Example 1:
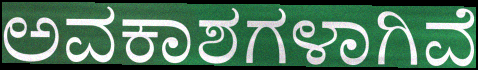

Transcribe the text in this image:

ಅವಕಾಶಗಳಾಗಿವೆ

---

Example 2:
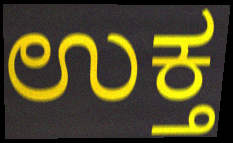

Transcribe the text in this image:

ಉಕ್ತ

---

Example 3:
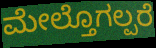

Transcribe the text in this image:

ಮೇಲ್ತೊಗಲ್ಪರೆ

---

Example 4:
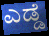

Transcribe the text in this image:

ಎಡ್ಡೆ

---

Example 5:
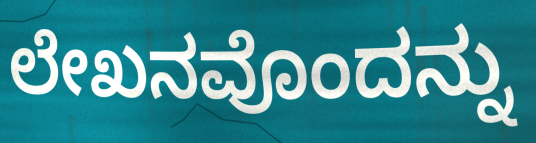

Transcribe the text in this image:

ಲೇಖನವೊಂದನ್ನು